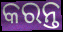
କରନ୍ତ